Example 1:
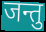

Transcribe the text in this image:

जन्तु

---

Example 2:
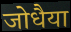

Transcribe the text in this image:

जोधैया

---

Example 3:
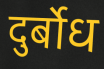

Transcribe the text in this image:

दुर्बोध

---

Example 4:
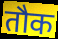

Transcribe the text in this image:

तौक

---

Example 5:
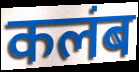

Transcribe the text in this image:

कलंब